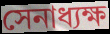
সেনাধ্যক্ষ